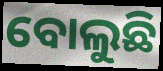
ବୋଲୁଛି